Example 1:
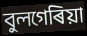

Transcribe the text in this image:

বুলগেৰিয়া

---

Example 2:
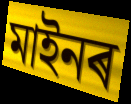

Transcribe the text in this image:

মাইনৰ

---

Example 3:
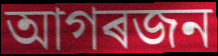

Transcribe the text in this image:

আগৰজন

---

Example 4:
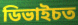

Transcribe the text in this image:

ডিভাইচত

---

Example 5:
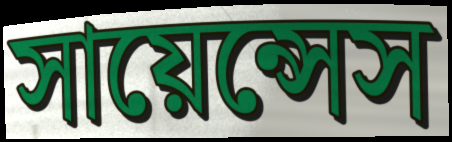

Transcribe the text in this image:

সায়েন্সেস